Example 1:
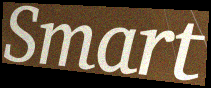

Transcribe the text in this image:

Smart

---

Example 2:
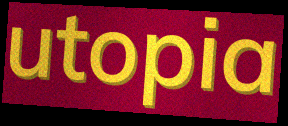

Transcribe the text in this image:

utopia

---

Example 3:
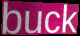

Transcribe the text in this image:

buck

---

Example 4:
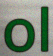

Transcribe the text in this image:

ol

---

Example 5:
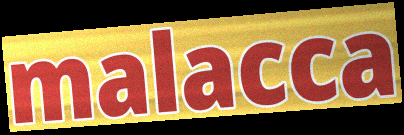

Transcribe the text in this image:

malacca